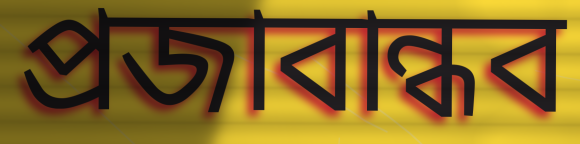
প্রজাবান্ধব